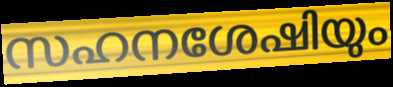
സഹനശേഷിയും